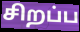
சிறப்ப